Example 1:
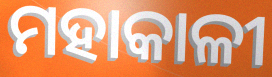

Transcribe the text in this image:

ମହାକାଳୀ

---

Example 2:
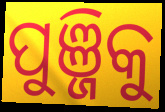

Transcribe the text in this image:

ପୁଞ୍ଜିକୁ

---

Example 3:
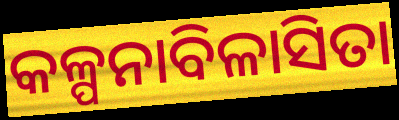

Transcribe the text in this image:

କଳ୍ପନାବିଳାସିତା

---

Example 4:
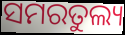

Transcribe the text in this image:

ସମରତୁଲ୍ୟ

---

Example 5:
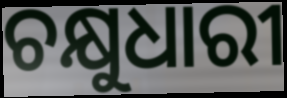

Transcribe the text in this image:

ଚକ୍ଷୁଧାରୀ